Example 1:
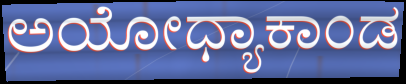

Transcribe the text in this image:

ಅಯೋಧ್ಯಾಕಾಂಡ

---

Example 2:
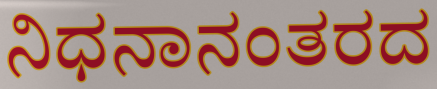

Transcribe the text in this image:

ನಿಧನಾನಂತರದ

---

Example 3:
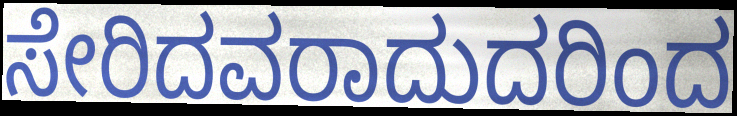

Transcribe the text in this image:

ಸೇರಿದವರಾದುದರಿಂದ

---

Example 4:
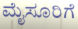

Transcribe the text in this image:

ಮೈಸೂರಿಗೆ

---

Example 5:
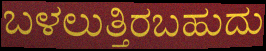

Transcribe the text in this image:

ಬಳಲುತ್ತಿರಬಹುದು